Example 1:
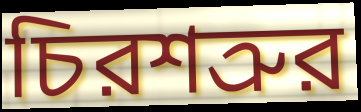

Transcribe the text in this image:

চিরশত্রুর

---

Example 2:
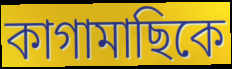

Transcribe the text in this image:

কাগামাছিকে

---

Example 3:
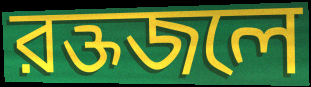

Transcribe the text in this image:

রক্তজলে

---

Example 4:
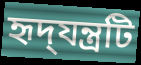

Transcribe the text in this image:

হৃদ্‌যন্ত্রটি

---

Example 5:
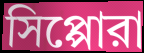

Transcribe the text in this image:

সিপ্পোরা